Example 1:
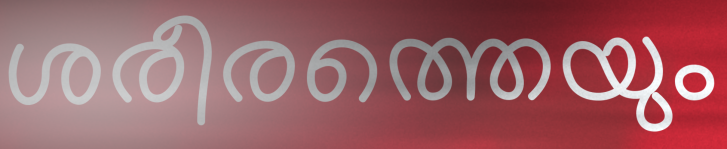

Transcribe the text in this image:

ശരീരത്തെയും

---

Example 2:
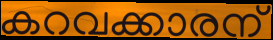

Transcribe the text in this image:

കറവക്കാരന്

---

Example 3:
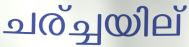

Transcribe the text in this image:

ചര്ച്ചയില്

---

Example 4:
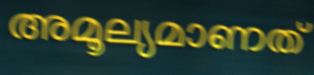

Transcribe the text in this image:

അമൂല്യമാണത്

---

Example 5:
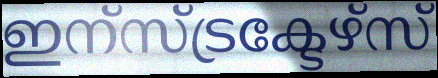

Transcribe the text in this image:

ഇന്സ്ട്രക്ടേഴ്സ്